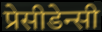
प्रेसीडेन्सी